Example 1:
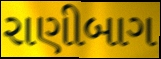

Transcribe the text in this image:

રાણીબાગ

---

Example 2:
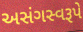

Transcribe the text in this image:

અસંગસ્વરૂપે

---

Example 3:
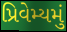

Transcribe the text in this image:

પ્રિવેમ્યમું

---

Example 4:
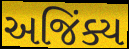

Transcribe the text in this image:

અજિંક્ય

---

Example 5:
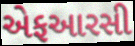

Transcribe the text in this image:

એફઆરસી